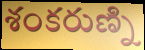
శంకరుణ్ని